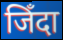
जिँदा